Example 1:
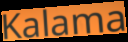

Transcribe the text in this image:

Kalama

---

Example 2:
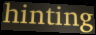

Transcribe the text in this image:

hinting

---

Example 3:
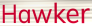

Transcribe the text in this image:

Hawker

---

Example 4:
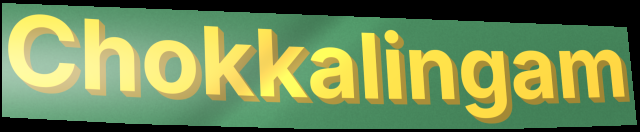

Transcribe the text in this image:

Chokkalingam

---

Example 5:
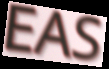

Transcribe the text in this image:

EAS